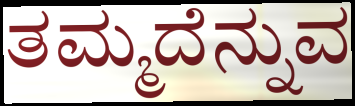
ತಮ್ಮದೆನ್ನುವ